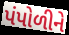
પંપોળીને